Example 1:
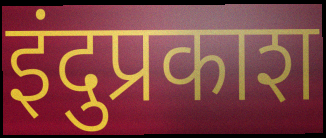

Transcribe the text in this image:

इंदुप्रकाश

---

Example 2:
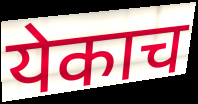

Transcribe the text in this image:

येकाच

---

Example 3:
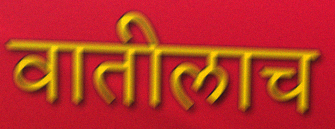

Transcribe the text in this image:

वातीलाच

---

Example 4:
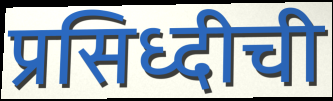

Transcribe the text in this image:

प्रसिध्दीची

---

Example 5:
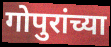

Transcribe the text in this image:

गोपुरांच्या